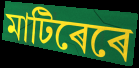
মাটিৰেৰে